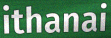
ithanai